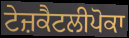
ਟੇਜ਼ਕੈਟਲੀਪੋਕਾ